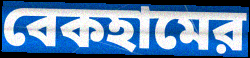
বেকহামের